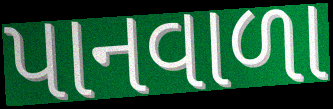
પાનવાળા